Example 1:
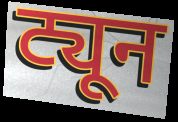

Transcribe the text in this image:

ट्यून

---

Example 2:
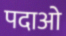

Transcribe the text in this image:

पदाओ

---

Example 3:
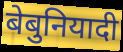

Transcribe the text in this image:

बेबुनियादी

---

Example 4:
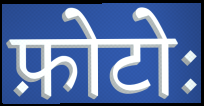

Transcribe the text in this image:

फ़ोटोः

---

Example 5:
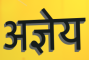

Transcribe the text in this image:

अज्ञेय